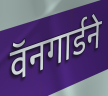
वॅनगार्डने